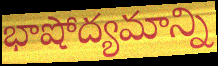
భాషోద్యమాన్ని